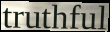
truthful